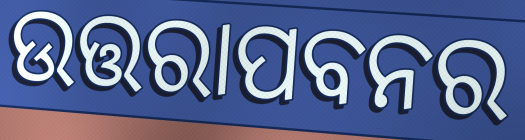
ଉତ୍ତରାପବନର